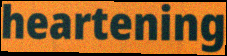
heartening